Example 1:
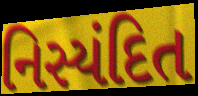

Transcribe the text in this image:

નિસ્યંદિત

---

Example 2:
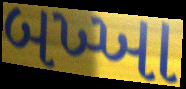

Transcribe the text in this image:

બખ્ખા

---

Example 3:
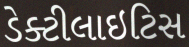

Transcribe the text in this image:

ડેક્ટીલાઇટિસ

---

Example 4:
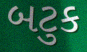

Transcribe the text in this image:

બટુક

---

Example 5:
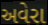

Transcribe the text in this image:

અવેરા